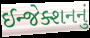
ઈન્જેક્શનનું